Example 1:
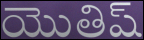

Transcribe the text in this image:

యొతిష్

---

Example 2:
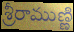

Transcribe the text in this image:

శ్రీరాముణ్ణి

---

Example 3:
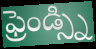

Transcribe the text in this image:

ఫ్రెండ్స్ని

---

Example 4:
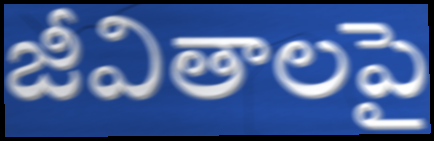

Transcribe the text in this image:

జీవితాలపై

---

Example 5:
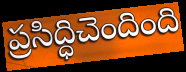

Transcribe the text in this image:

ప్రసిద్ధిచెందింది